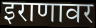
इराणावर